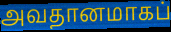
அவதானமாகப்